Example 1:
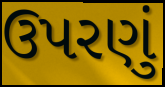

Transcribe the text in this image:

ઉપરણું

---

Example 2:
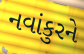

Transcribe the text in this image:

નવાંકુરને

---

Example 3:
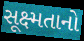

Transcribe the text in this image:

સૂક્ષ્મતાનો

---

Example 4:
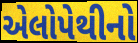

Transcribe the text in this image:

એલોપેથીનો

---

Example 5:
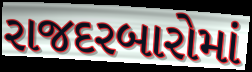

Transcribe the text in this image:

રાજદરબારોમાં